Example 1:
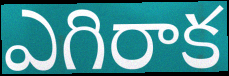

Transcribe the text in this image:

ఎగిరాక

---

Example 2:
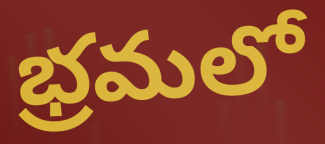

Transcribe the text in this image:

భ్రమలో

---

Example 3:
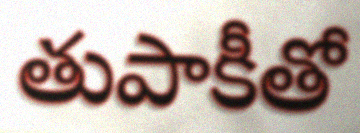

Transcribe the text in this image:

తుపాకీతో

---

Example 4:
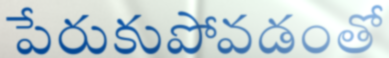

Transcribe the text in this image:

పేరుకుపోవడంతో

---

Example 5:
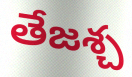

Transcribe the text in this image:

తేజశ్చ